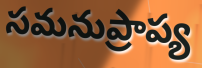
సమనుప్రాప్య